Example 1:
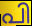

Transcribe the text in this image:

പി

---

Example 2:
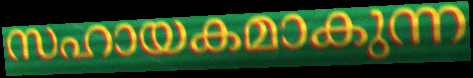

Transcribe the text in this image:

സഹായകമാകുന്ന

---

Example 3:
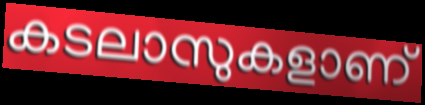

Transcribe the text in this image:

കടലാസുകളാണ്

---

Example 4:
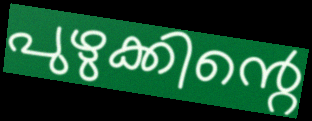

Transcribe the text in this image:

പുഴുക്കിന്റെ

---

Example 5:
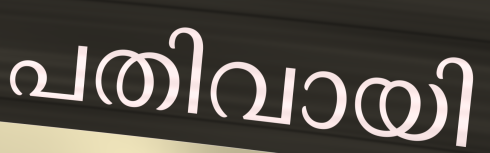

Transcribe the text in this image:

പതിവായി